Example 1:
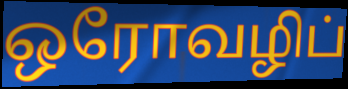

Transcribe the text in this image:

ஒரோவழிப்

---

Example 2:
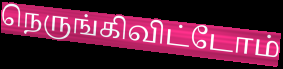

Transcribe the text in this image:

நெருங்கிவிட்டோம்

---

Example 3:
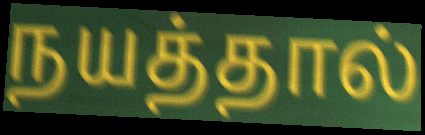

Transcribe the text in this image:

நயத்தால்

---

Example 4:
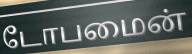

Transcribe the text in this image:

டோபமைன்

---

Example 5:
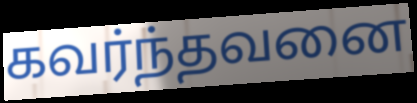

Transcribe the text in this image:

கவர்ந்தவனை